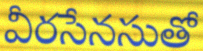
వీరసేనసుతో